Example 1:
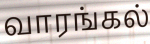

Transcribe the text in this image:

வாரங்கல்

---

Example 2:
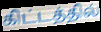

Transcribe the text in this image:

கிட்டத்தில்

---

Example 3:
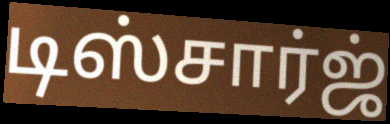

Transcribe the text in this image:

டிஸ்சார்ஜ்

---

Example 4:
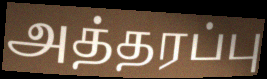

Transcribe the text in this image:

அத்தரப்பு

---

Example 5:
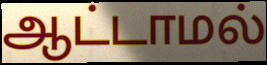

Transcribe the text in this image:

ஆட்டாமல்